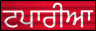
ਟਪਾਰੀਆ